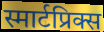
स्मार्टप्रिक्स